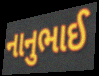
નાનુભાઈ